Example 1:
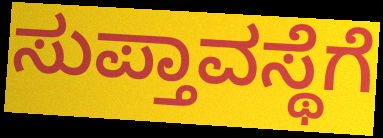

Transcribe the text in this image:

ಸುಪ್ತಾವಸ್ಥೆಗೆ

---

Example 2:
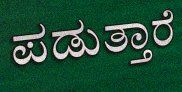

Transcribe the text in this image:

ಪಡುತ್ತಾರೆ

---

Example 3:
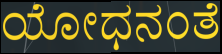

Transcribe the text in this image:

ಯೋಧನಂತೆ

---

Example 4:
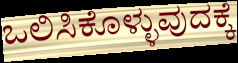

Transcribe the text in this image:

ಒಲಿಸಿಕೊಳ್ಳುವುದಕ್ಕೆ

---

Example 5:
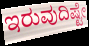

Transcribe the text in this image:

ಇರುವುದಿಷ್ಟೇ